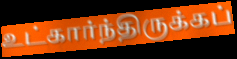
உட்கார்ந்திருக்கப்